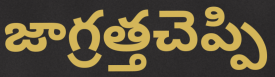
జాగ్రత్తచెప్పి